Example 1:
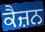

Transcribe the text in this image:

ਕੈਜ਼ਨ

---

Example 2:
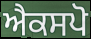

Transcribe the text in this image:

ਐਕਸਪੋ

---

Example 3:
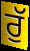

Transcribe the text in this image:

ਰੁੱ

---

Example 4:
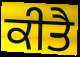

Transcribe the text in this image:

ਕੀਤੈ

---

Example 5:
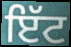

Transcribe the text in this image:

ਇੱਟ